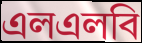
এলএলবি